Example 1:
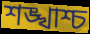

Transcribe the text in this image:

শঙ্খাশ্চ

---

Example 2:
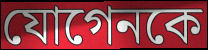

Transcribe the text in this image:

যোগেনকে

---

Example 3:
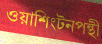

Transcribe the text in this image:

ওয়াশিংটনপন্থী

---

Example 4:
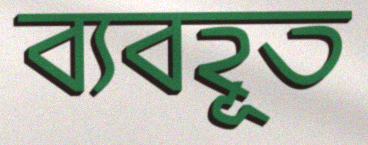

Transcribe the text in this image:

ব্যবহূত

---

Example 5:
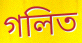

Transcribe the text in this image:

গলিত